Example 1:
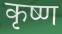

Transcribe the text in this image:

कृष्ण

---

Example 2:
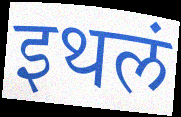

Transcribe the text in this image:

इथलं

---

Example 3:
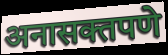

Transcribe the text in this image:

अनासक्तपणे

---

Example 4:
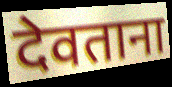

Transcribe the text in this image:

देवताना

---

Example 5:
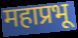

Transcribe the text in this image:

महाप्रभू